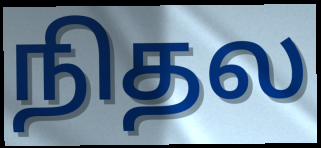
நிதல